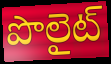
పొలైట్